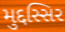
મુદ્દસ્સિર